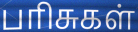
பரிசுகள்